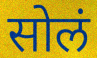
सोलं